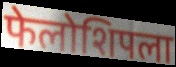
फेलोशिपला